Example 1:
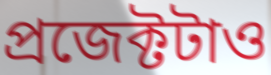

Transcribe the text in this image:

প্রজেক্টটাও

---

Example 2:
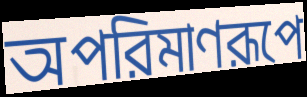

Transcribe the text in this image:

অপরিমাণরূপে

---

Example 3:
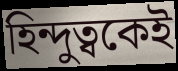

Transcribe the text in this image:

হিন্দুত্বকেই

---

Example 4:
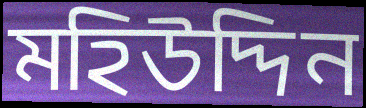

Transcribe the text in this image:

মহিউদ্দিন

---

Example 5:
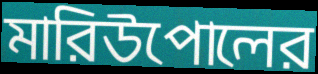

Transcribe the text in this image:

মারিউপোলের